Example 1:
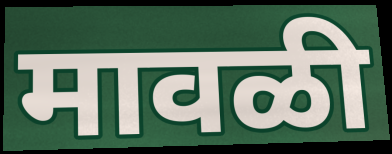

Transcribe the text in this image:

मावळी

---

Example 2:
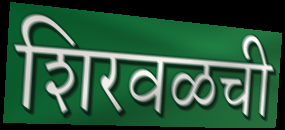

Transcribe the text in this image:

शिरवळची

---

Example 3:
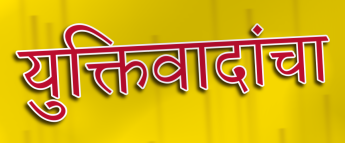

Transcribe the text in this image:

युक्तिवादांचा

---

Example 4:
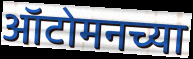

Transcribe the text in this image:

ऑटोमनच्या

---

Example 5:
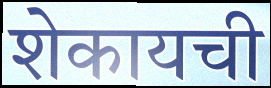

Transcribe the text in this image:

शेकायची